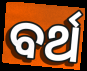
ବର୍ଥ